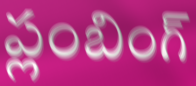
ప్లంబింగ్